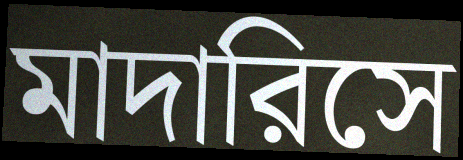
মাদারিসে